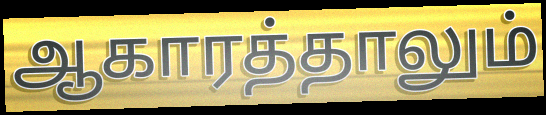
ஆகாரத்தாலும்